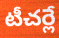
టీచర్లే